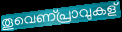
തൂവെണ്പ്രാവുകള്